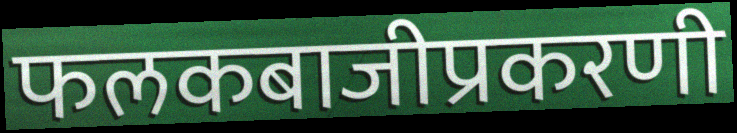
फलकबाजीप्रकरणी